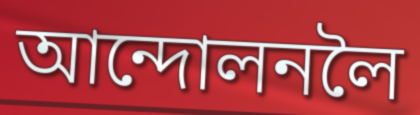
আন্দোলনলৈ